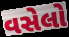
વસેલો